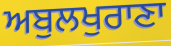
ਅਬੁਲਖੁਰਾਣਾ